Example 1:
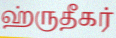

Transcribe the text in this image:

ஹ்ருதீகர்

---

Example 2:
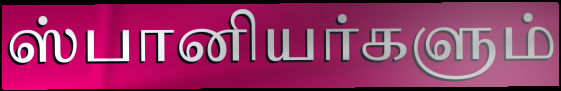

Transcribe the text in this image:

ஸ்பானியர்களும்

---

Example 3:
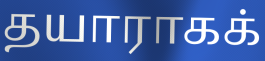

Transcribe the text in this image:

தயாராகக்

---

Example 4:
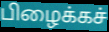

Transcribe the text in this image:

பிழைக்கச்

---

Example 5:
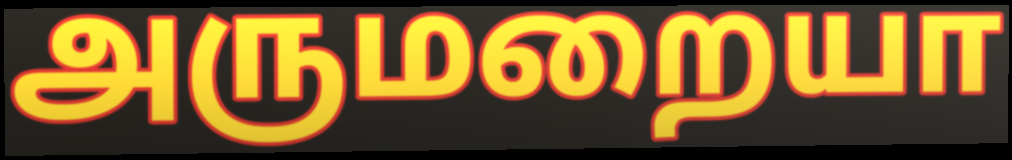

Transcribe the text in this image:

அருமறையா